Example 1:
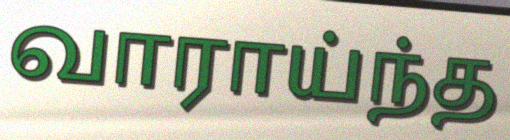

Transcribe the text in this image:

வாராய்ந்த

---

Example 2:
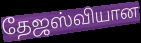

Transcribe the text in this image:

தேஜஸ்வியான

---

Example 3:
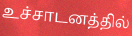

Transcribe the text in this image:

உச்சாடனத்தில்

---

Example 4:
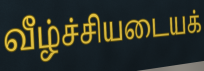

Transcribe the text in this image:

வீழ்ச்சியடையக்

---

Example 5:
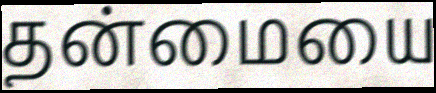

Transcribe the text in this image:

தன்மையை